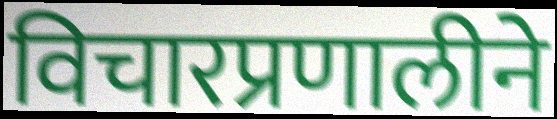
विचारप्रणालीने